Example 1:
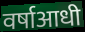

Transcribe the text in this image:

वर्षाआधी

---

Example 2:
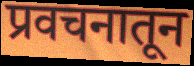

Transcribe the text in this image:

प्रवचनातून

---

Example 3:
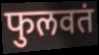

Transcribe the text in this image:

फुलवतं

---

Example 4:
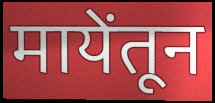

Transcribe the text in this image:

मायेंतून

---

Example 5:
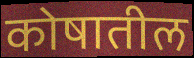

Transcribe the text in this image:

कोषातील